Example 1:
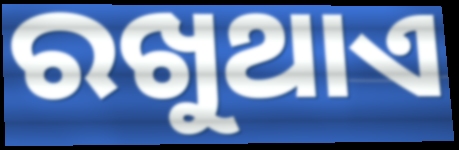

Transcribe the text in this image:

ରଖୁଥାଏ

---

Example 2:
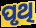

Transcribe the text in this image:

ପୃଥି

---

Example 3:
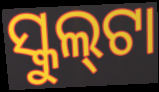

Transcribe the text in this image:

ସ୍କୁଲ୍‍ଟା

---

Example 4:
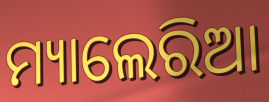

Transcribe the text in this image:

ମ୍ଯାଲେରିଆ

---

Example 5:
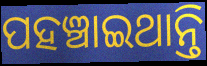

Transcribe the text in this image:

ପହଞ୍ଚାଇଥାନ୍ତି